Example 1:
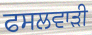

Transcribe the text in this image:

ਫਸਲਵਾੜੀ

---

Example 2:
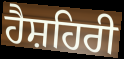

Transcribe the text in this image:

ਹੈਸ਼ਹਿਰੀ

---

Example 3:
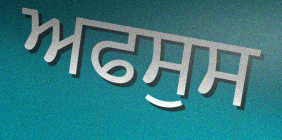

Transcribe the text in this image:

ਅਫਸੁਸ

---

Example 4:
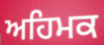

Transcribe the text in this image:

ਅਹਿਮਕ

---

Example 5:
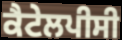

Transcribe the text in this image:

ਕੈਟੇਲਪੀਸੀ